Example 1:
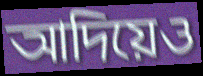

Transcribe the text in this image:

আদিয়েও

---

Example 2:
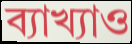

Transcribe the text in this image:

ব্যাখ্যাও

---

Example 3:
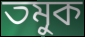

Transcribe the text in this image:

তমুক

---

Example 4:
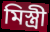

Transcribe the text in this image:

মিস্ত্ৰী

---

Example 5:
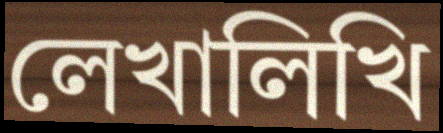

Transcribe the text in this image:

লেখালিখি